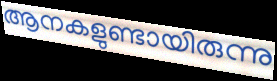
ആനകളുണ്ടായിരുന്നു